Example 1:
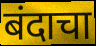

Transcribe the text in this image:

बंदाचा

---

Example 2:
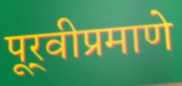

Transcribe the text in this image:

पूर्वीप्रमाणे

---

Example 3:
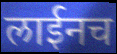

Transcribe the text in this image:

लाईनच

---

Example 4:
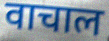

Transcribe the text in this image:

वाचाल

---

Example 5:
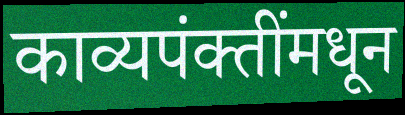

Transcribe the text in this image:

काव्यपंक्तींमधून